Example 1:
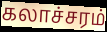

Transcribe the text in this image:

கலாச்சரம்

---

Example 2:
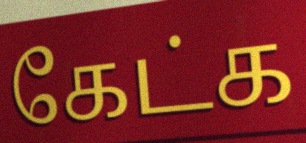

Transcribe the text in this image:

கேட்க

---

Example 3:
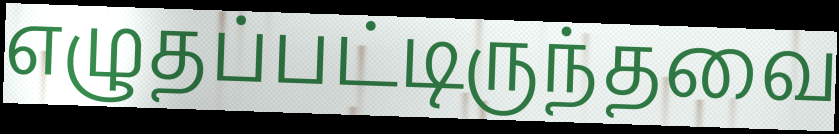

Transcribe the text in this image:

எழுதப்பட்டிருந்தவை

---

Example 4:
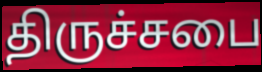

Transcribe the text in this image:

திருச்சபை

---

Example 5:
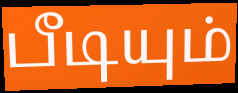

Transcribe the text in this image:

பீடியும்